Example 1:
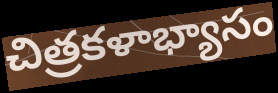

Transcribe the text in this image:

చిత్రకళాభ్యాసం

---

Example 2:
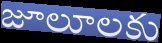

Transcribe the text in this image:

జూలూలకు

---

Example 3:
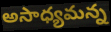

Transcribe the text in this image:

అసాధ్యమన్న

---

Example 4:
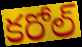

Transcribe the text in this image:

కరోల్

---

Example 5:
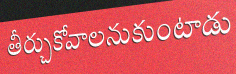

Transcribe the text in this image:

తీర్చుకోవాలనుకుంటాడు